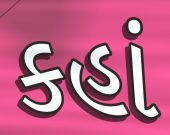
કહાં